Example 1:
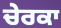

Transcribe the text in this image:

ਚੇਰਕਾ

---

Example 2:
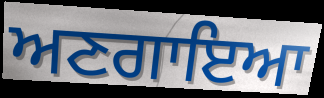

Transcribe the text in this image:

ਅਣਗਾਇਆ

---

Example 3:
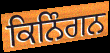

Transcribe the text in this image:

ਕਿਨਿੰਗਨ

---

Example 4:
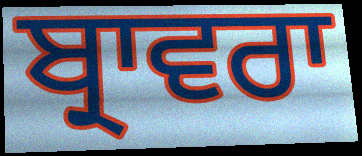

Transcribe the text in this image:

ਬ੍ਰਾਵਰਾ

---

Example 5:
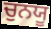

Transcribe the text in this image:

ਚੁਨਯੂ